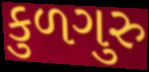
કુળગુરુ